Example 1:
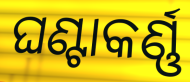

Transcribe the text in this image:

ଘଣ୍ଟାକର୍ଣ୍ଣ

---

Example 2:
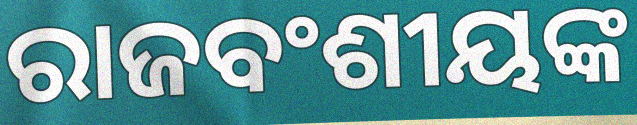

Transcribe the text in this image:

ରାଜବଂଶୀୟଙ୍କ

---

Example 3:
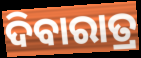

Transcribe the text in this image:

ଦିବାରାତ୍ର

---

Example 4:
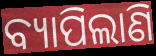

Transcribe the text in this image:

ବ୍ୟାପିଲାଣି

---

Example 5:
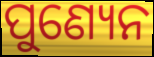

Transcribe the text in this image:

ପୁଣ୍ୟେନ